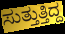
ಸುತ್ತುತ್ತಿದ್ದ